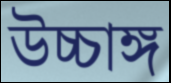
উচ্চাঙ্গ